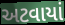
અટવાયાં